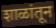
शाळांतून